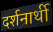
दर्शनार्थी